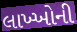
લાખ્ખોની